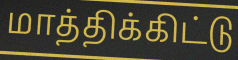
மாத்திக்கிட்டு